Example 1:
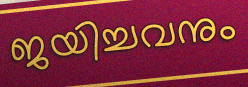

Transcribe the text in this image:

ജയിച്ചവനും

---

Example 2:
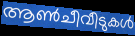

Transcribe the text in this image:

ആൺചീവീടുകൾ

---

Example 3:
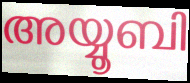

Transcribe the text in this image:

അയ്യൂബി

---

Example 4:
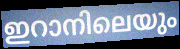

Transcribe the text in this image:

ഇറാനിലെയും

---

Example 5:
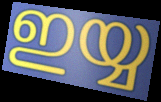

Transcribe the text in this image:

ഇയ്യ